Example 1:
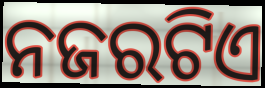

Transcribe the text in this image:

ନଜରଟିଏ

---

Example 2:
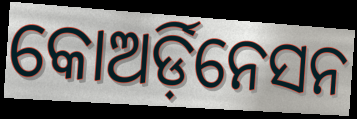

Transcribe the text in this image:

କୋଅର୍ଡ଼ିନେସନ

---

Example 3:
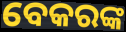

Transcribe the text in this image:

ବେକରଙ୍କ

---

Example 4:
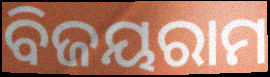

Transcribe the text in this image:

ବିଜୟରାମ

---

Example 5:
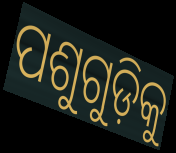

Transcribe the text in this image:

ପଶୁଗୁଡ଼ିକୁ